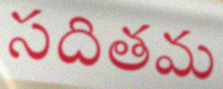
సదితమ